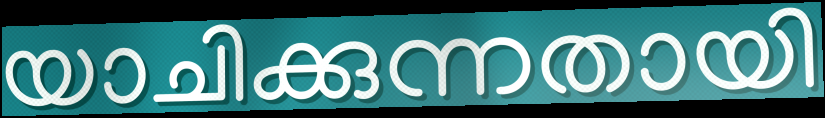
യാചിക്കുന്നതായി